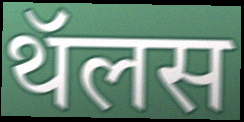
थॅलस